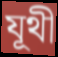
যূথী